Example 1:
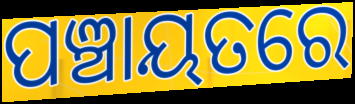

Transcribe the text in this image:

ପଞ୍ଚାୟତରେ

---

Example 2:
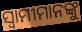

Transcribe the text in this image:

ସ୍ଵାମୀମାନଙ୍କୁ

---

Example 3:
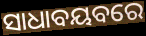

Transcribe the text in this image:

ସାଧାବୟବରେ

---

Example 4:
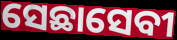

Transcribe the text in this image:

ସେଛାସେବୀ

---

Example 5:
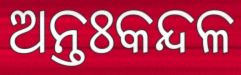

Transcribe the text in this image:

ଅନ୍ତଃକନ୍ଦଳ